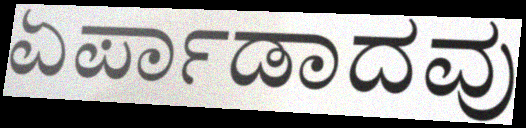
ಏರ್ಪಾಡಾದವು